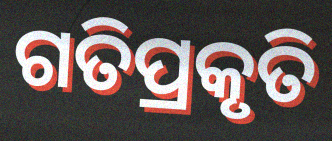
ଗତିପ୍ରକୃତି